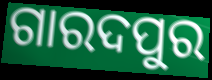
ଗାରଦପୁର